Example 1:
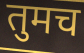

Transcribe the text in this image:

तुमच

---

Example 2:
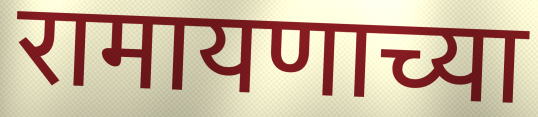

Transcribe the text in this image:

रामायणाच्या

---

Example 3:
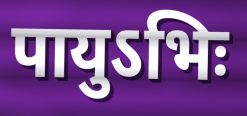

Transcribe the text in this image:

पायुऽभिः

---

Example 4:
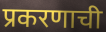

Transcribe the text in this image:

प्रकरणाची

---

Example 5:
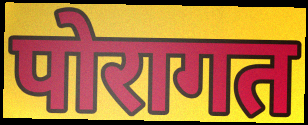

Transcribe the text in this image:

पोरागत